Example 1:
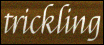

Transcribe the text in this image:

trickling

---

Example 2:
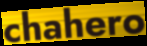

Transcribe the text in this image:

chahero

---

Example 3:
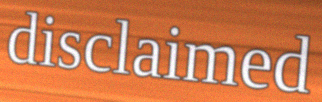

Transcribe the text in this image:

disclaimed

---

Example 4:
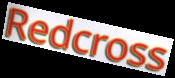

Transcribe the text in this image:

Redcross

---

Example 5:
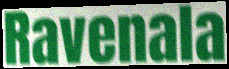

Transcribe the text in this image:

Ravenala